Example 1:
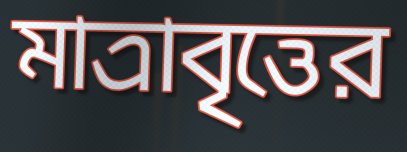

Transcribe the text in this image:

মাত্রাবৃত্তের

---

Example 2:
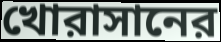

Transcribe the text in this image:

খোরাসানের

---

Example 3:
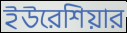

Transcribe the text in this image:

ইউরেশিয়ার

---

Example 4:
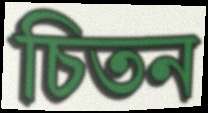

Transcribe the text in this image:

চিতন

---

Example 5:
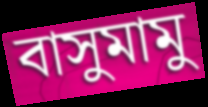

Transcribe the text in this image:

বাসুমামু